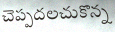
చెప్పదలచుకొన్న